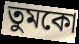
তুমকো